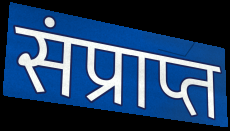
संप्राप्त